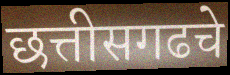
छत्तीसगढचे